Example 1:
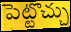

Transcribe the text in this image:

పెట్టొచ్చు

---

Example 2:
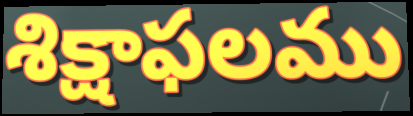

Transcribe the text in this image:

శిక్షాఫలము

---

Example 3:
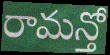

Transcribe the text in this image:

రామన్తో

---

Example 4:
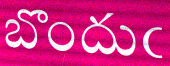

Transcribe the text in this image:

బొందుఁ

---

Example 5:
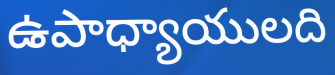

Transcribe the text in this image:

ఉపాధ్యాయులది